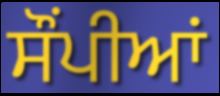
ਸੌਂਪੀਆਂ